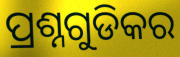
ପ୍ରଶ୍ନଗୁଡିକର